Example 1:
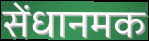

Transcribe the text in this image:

सेंधानमक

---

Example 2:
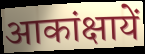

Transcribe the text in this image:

आकांक्षायें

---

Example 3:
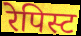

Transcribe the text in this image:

रेपिस्ट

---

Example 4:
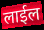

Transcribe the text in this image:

लाईल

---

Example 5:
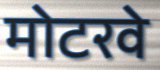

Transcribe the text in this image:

मोटरवे